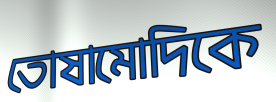
তোষামোদিকে